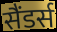
सैंडर्स